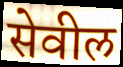
सेवील